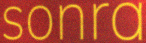
sonra